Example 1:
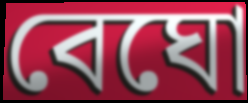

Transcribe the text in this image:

বেঘো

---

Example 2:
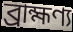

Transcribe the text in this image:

ব্ৰাহ্মণ্য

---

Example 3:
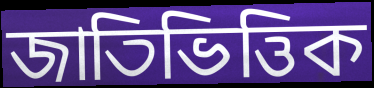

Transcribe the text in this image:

জাতিভিত্তিক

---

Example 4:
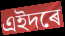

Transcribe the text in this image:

এইদৰে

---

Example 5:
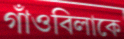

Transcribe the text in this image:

গাঁওবিলাকে